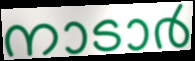
നാടാർ